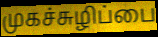
முகச்சுழிப்பை